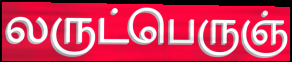
லருட்பெருஞ்